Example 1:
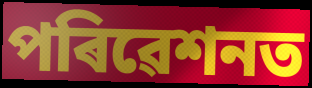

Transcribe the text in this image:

পৰিৱেশনত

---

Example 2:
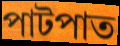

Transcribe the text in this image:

পাটপাত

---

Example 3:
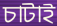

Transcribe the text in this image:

চাটাই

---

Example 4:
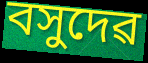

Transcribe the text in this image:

বসুদেৱ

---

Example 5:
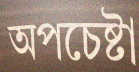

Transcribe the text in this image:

অপচেষ্টা